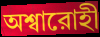
অশ্বারোহী